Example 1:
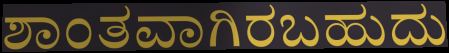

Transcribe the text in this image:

ಶಾಂತವಾಗಿರಬಹುದು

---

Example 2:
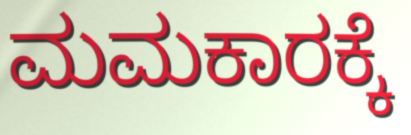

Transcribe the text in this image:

ಮಮಕಾರಕ್ಕೆ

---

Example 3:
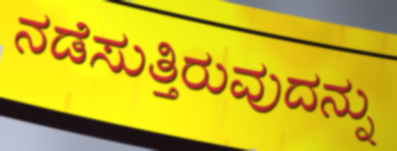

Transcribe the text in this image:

ನಡೆಸುತ್ತಿರುವುದನ್ನು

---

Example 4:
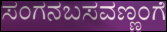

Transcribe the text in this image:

ಸಂಗನಬಸವಣ್ಣಂಗೆ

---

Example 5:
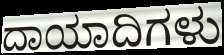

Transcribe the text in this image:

ದಾಯಾದಿಗಳು